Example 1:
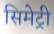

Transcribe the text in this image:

सिमेट्री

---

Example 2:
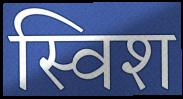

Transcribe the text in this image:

स्विश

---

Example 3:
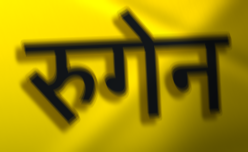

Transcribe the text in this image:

रुगेन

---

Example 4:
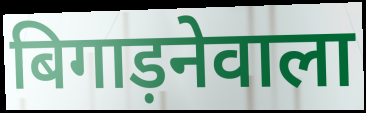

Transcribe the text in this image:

बिगाड़नेवाला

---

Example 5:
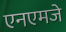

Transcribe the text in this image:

एनएमजे